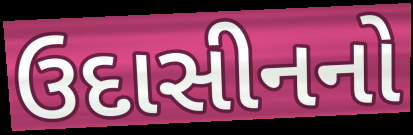
ઉદાસીનનો